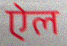
ऐल